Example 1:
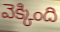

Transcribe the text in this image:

వెక్కింది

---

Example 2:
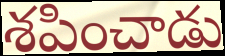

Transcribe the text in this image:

శపించాడు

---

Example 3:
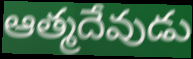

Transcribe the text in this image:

ఆత్మదేవుడు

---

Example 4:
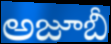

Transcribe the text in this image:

అజూబీ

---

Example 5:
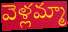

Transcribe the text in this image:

వెళ్లమ్మా